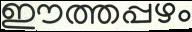
ഈത്തപ്പഴം